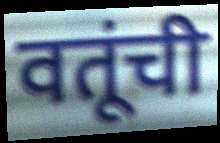
वतूंची